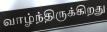
வாழ்ந்திருக்கிறது